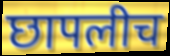
छापलीच